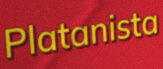
Platanista